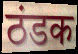
ठंडक